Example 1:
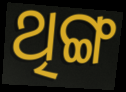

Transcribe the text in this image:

ଥିଙ୍ଗ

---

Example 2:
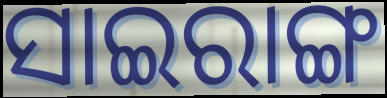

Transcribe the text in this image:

ସାଇରାଙ୍ଗ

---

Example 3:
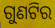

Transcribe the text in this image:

ଗୁଣଟିର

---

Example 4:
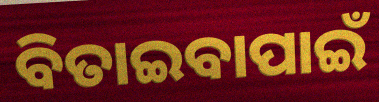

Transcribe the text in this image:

ବିତାଇବାପାଇଁ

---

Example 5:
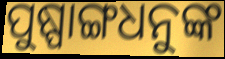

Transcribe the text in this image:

ପୁଷ୍ପାଙ୍ଗଧନୁଙ୍କ